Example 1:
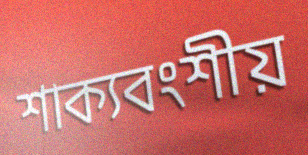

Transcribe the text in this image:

শাক্যবংশীয়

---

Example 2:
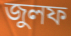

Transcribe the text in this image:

জুলফ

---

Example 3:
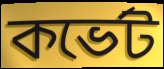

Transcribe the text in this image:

কর্ভেট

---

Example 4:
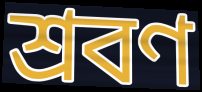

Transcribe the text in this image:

শ্রবণ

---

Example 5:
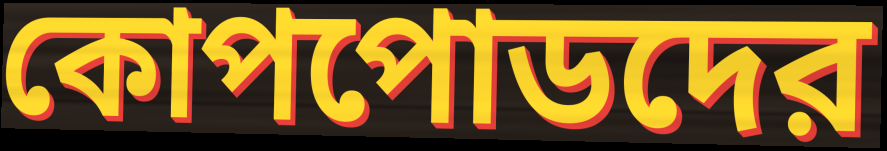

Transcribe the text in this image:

কোপপোডদের